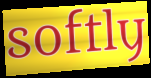
softly